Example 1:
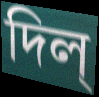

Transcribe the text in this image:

দিল্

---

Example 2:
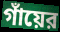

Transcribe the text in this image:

গাঁয়ের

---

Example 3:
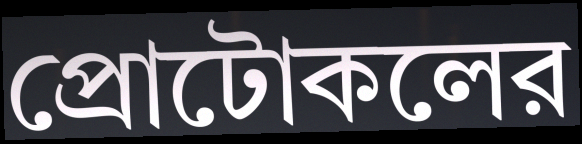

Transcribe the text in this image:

প্রোটোকলের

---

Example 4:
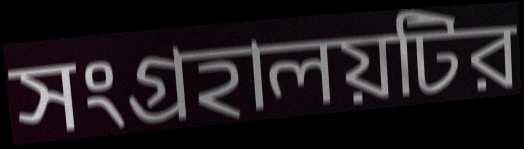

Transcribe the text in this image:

সংগ্রহালয়টির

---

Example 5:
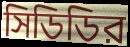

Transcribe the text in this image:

সিডিডির